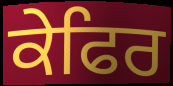
ਕੇਫਿਰ